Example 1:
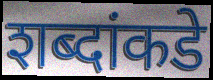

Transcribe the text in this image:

शब्दांकडे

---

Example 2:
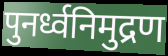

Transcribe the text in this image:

पुनर्ध्वनिमुद्रण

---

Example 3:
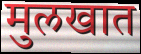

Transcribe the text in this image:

मुलखात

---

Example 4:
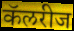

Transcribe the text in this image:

कॅलरीज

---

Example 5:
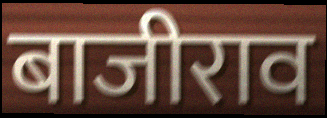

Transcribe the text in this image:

बाजीराव